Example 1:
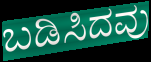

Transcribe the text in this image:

ಬಡಿಸಿದವು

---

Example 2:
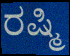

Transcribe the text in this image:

ರಷ್ಮಿ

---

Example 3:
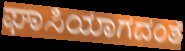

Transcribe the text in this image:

ಘಾಸಿಯಾಗದಂತೆ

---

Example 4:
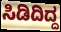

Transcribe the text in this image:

ಸಿಡಿದಿದ್ದ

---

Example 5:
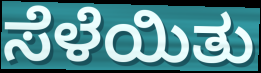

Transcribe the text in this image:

ಸೆಳೆಯಿತು